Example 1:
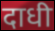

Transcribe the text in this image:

दाधी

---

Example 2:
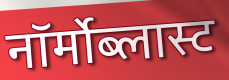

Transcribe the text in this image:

नॉर्मोब्लास्ट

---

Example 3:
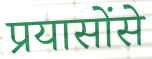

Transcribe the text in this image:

प्रयासोंसे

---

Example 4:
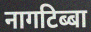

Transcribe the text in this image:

नागटिब्बा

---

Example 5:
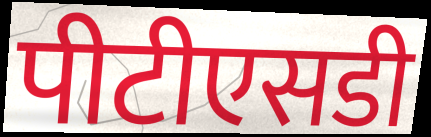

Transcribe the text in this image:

पीटीएसडी